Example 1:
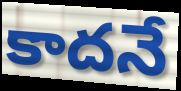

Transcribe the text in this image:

కాదనే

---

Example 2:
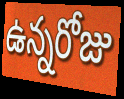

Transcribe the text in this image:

ఉన్నరోజు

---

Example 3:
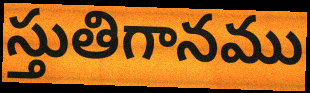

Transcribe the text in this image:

స్తుతిగానము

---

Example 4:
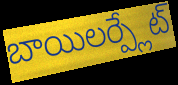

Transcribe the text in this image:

బాయిలర్ప్లేట్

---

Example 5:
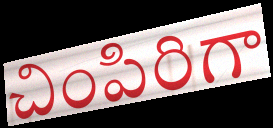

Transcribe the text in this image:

చింపిరిగా